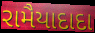
રામૈયાદાદા